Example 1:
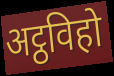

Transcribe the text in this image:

अट्ठविहो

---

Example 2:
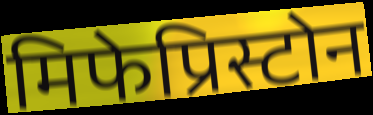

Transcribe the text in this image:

मिफेप्रिस्टोन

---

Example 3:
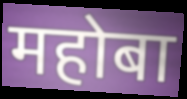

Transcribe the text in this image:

महोबा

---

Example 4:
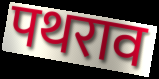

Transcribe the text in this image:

पथराव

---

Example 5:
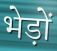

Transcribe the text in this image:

भेड़ों